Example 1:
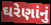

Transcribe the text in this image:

ઘરેણાંનું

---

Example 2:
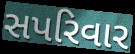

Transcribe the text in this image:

સપરિવાર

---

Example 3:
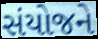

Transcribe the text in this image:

સંયોજને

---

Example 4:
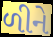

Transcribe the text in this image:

ળીને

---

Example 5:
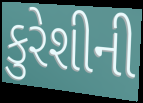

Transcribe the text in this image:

કુરેશીની